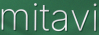
mitavi